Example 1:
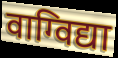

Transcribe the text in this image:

वाग्विद्या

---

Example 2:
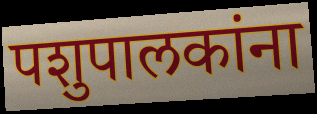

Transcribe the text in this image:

पशुपालकांना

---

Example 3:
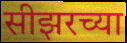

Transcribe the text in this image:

सीझरच्या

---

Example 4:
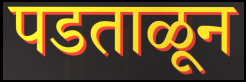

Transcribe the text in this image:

पडताळून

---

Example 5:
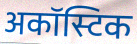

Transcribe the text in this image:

अकॉस्टिक